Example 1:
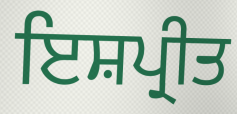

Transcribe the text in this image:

ਇਸ਼ਪ੍ਰੀਤ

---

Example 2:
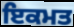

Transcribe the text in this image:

ਇਕਮਤ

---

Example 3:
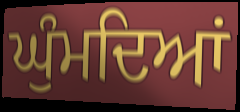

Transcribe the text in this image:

ਘੁੰਮਦਿਆਂ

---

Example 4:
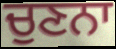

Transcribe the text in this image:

ਚੁਣਨਾ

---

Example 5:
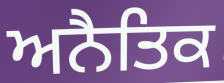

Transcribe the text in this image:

ਅਨੈਤਿਕ